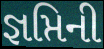
જ્ઞપ્તિની